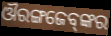
ଔରଙ୍ଗଜେବ୍‌ଙ୍କର